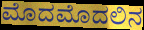
ಮೊದಮೊದಲಿನ